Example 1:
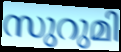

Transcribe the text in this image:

സുറുമി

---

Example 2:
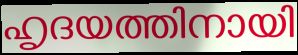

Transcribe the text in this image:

ഹൃദയത്തിനായി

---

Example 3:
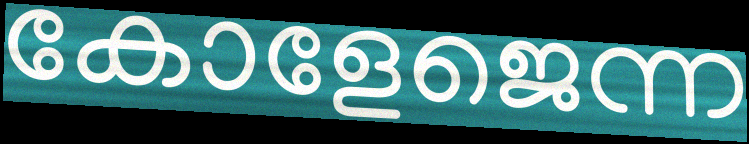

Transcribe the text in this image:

കോളേജെന്ന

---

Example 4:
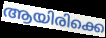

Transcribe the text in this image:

ആയിരിക്കെ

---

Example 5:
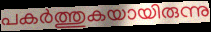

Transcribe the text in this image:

പകർത്തുകയായിരുന്നു